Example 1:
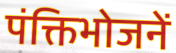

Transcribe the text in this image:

पंक्तिभोजनें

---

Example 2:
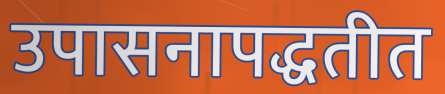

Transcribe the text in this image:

उपासनापद्धतीत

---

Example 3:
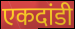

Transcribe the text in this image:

एकदांडी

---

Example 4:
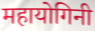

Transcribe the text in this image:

महायोगिनी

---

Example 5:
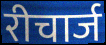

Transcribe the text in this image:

रीचार्ज